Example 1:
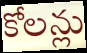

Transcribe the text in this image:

కోలన్లు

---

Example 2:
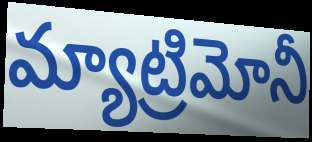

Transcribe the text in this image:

మ్యాట్రిమోనీ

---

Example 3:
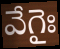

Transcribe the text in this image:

వేగైః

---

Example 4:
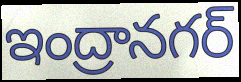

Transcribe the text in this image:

ఇంద్రానగర్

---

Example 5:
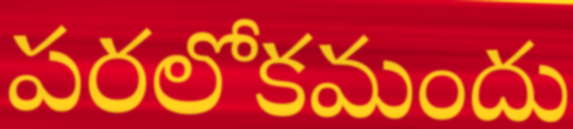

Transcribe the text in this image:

పరలోకమందు